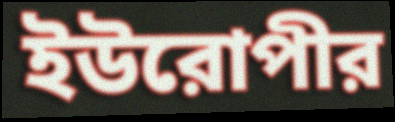
ইউরোপীর